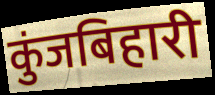
कुंजबिहारी